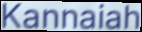
Kannaiah